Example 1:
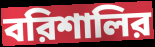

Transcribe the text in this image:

বরিশালির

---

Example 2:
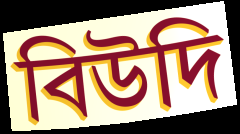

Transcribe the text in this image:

বিউদি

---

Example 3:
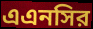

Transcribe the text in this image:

এএনসির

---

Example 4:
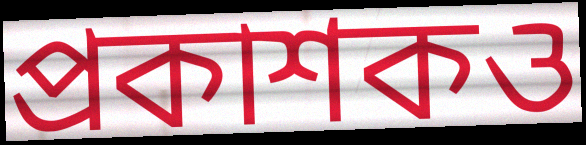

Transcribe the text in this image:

প্রকাশকও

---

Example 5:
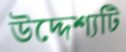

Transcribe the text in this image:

উদ্দেশ্যটি